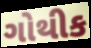
ગોથીક